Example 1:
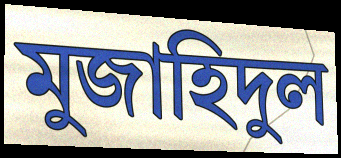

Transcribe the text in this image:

মুজাহিদুল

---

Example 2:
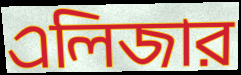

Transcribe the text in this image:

এলিজার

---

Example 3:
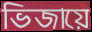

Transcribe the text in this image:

ভিজায়ে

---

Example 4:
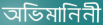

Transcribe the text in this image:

অভিমানিনী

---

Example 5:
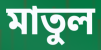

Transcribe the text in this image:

মাতুল